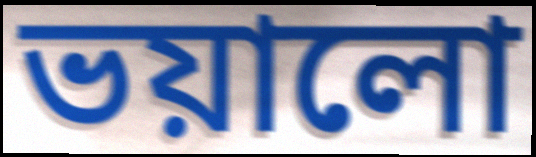
ভয়ালো